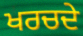
ਖਰਚਦੇ